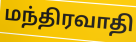
மந்திரவாதி